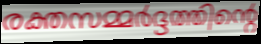
രക്തസമ്മർദ്ദത്തിന്റെ